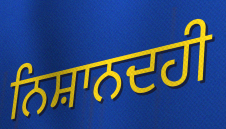
ਨਿਸ਼ਾਨਦਹੀ